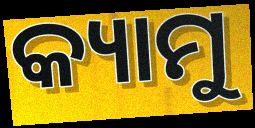
କ୍ୟାମୁ